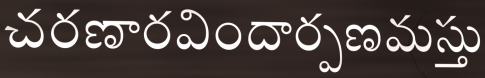
చరణారవిందార్పణమస్తు